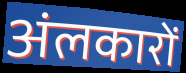
अंलकारों